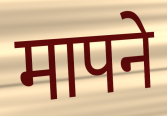
मापने